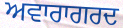
ਅਵਾਰਾਗਰਦ